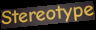
Stereotype